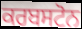
ਕਰਬਸਟੋਨ